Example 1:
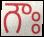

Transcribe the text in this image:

గౌః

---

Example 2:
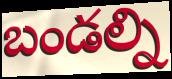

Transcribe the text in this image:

బండల్ని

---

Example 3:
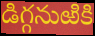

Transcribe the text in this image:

డిగ్గనుఱికి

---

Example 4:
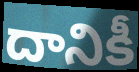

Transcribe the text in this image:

దానికీ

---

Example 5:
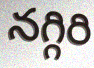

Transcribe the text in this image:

నగ్గిరి